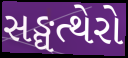
સઙ્ઘત્થેરો